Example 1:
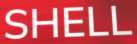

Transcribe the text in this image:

SHELL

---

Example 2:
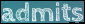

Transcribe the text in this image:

admits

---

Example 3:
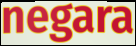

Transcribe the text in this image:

negara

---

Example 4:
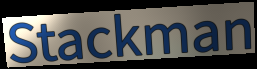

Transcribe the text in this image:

Stackman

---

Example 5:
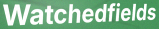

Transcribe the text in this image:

Watchedfields